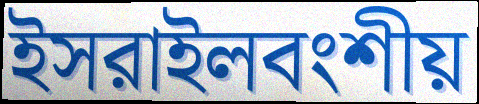
ইসরাইলবংশীয়